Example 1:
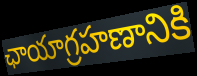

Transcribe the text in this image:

ఛాయాగ్రహణానికి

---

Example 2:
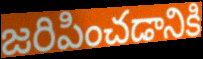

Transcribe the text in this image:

జరిపించడానికి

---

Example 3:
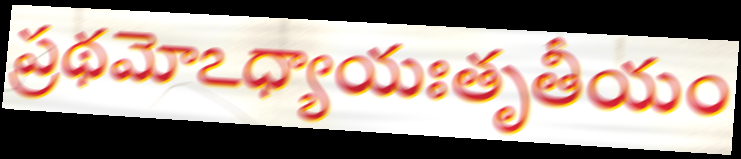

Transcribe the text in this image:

ప్రథమోఽధ్యాయఃతృతీయం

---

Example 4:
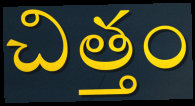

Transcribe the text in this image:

చిత్తం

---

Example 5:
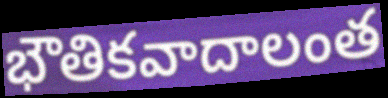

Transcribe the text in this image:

భౌతికవాదాలంత